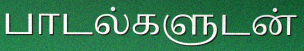
பாடல்களுடன்